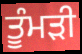
ਤੂੰਮੜੀ